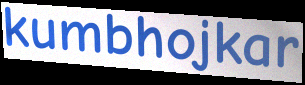
kumbhojkar